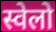
स्वेलो